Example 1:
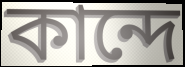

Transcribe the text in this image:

কান্দে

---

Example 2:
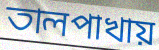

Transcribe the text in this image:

তালপাখায়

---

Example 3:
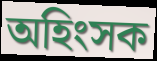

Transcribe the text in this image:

অহিংসক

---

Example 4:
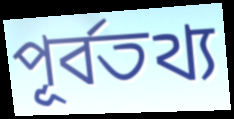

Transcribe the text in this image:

পূর্বতথ্য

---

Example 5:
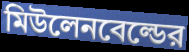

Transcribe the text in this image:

মিউলেনবেল্ডের